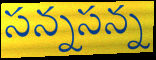
సన్నసన్న